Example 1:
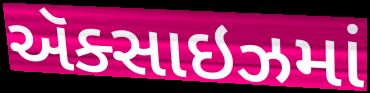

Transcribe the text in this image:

ઍક્સાઇઝમાં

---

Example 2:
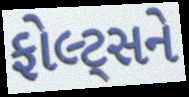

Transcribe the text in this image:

ફોલ્ટ્સને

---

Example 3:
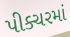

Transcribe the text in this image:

પીક્ચરમાં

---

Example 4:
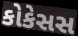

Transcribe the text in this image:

કોકેસસ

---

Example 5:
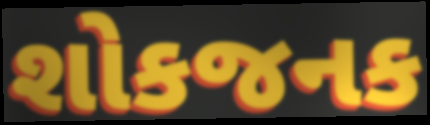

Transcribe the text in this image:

શોકજનક